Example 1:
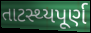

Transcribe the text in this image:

તાટસ્થ્યપૂર્ણ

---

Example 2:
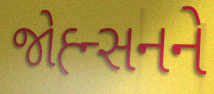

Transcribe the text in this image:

જોહ્ન્સનને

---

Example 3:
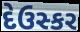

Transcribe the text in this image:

દેઉસ્કર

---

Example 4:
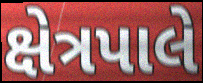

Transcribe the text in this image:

ક્ષેત્રપાલે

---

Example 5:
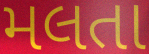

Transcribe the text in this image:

મલતા